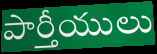
పార్తీయులు